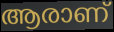
ആരാണ്